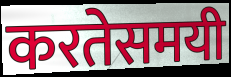
करतेसमयी